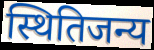
स्थितिजन्य